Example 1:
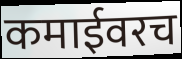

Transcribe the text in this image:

कमाईवरच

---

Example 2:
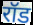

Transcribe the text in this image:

रॉड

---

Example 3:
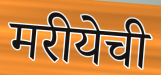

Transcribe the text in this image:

मरीयेची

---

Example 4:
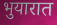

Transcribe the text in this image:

भुयारात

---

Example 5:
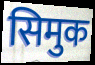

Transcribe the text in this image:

सिमुक